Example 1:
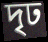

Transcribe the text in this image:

দৃঢ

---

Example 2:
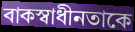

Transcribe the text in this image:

বাকস্বাধীনতাকে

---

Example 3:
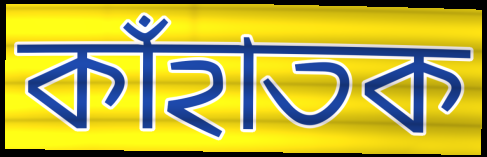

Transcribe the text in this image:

কাঁহাতক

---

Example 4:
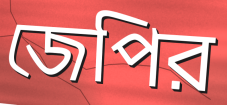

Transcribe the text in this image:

জেপির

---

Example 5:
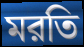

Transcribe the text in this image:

মরতি